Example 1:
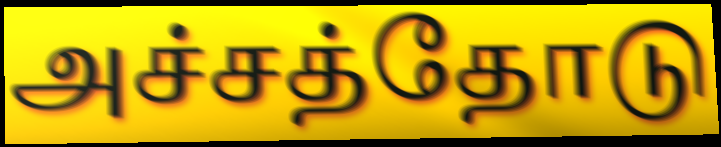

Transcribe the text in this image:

அச்சத்தோடு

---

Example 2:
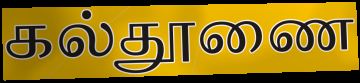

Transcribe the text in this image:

கல்தூணை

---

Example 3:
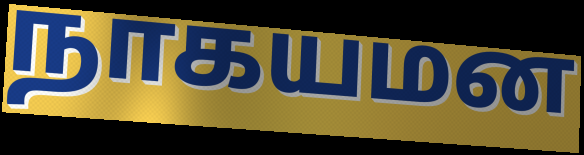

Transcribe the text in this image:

நாகயமன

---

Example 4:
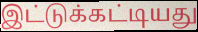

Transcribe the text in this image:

இட்டுக்கட்டியது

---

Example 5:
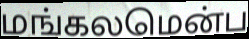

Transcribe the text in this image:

மங்கலமென்ப